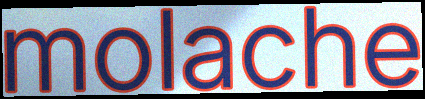
molache